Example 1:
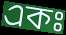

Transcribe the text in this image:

একঃ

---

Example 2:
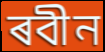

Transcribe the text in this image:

ৰবীন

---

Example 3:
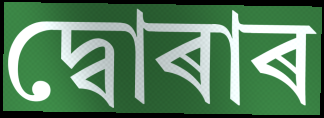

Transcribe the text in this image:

দ্বোৰাৰ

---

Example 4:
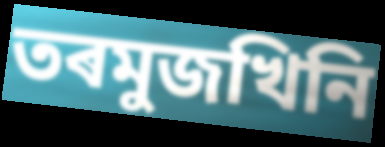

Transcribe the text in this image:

তৰমুজখিনি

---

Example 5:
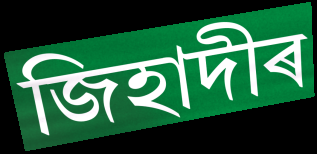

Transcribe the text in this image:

জিহাদীৰ